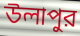
উলাপুর